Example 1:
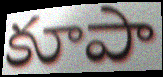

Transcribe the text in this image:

కూపా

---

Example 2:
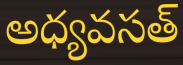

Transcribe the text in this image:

అధ్యవసత్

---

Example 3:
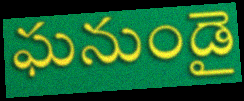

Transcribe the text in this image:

ఘనుండై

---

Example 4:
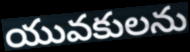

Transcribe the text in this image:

యువకులను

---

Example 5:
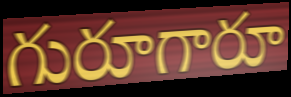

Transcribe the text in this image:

గురూగారూ